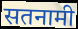
सतनामी